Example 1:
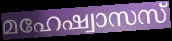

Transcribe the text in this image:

മഹേഷ്വാസസ്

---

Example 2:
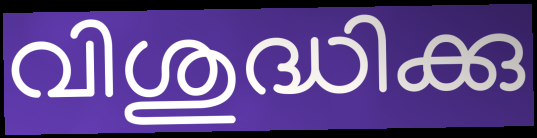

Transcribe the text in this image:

വിശുദ്ധിക്കു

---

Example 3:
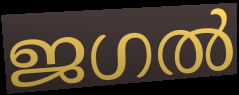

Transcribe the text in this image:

ജഗൽ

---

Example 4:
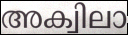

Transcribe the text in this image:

അക്വിലാ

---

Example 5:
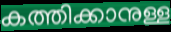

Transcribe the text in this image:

കത്തിക്കാനുള്ള